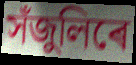
সঁজুলিৰে